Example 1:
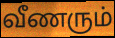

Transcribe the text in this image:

வீணரும்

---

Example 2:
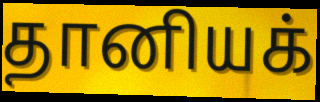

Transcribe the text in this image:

தானியக்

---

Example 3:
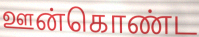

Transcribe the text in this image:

ஊன்கொண்ட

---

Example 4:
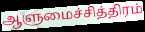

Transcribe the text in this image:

ஆளுமைச்சித்திரம்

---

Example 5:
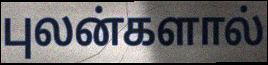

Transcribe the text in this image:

புலன்களால்